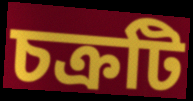
চক্রটি